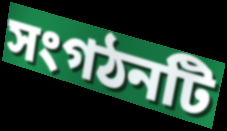
সংগঠনটি